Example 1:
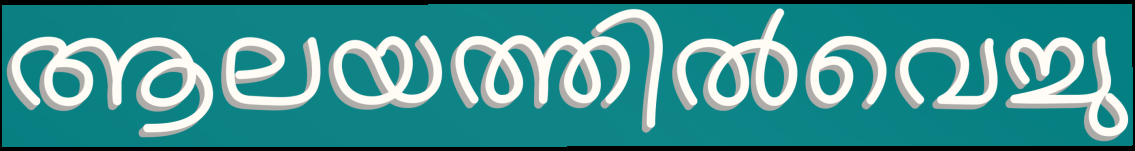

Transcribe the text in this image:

ആലയത്തിൽവെച്ചു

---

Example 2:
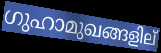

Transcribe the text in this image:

ഗുഹാമുഖങ്ങളില്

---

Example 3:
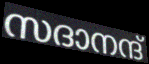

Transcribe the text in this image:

സദാനന്ദ്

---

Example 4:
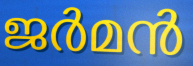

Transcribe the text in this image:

ജർമൻ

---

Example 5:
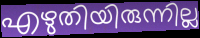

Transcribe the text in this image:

എഴുതിയിരുന്നില്ല